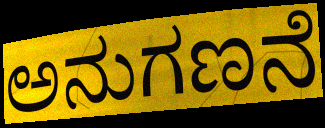
ಅನುಗಣನೆ